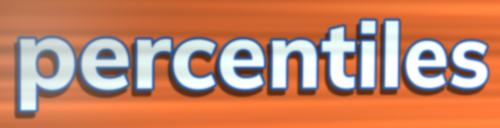
percentiles